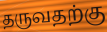
தருவதற்கு